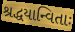
શ્રદ્ધયાન્વિતાઃ